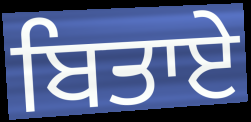
ਬਿਤਾਏ